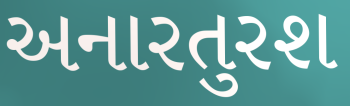
અનારતુરશ